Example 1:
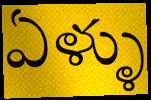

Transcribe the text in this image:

ఏళ్ళు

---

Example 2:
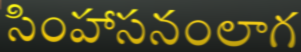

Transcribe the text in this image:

సింహాసనంలాగ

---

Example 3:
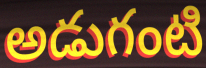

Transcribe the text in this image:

అడుగంటి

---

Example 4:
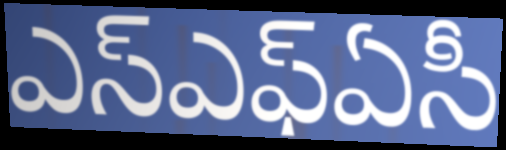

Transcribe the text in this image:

ఎస్ఎఫ్ఏసీ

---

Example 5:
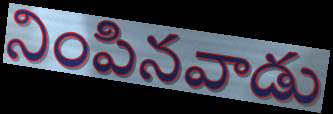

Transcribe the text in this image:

నింపినవాడు